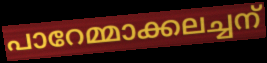
പാറേമ്മാക്കലച്ചന്